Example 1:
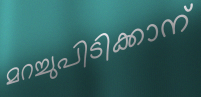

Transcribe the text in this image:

മറച്ചുപിടിക്കാന്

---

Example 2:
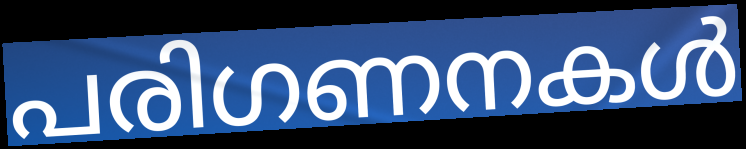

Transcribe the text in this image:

പരിഗണനകൾ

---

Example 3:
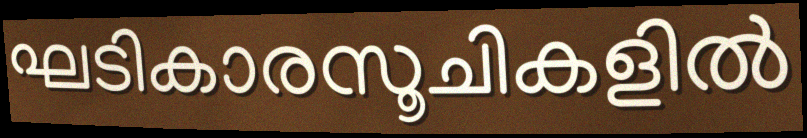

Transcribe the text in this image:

ഘടികാരസൂചികളിൽ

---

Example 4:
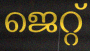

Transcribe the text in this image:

ജെറ്റ്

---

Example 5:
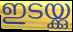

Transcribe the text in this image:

ഇടയ്ക്കു